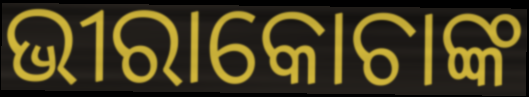
ଭୀରାକୋଚାଙ୍କ